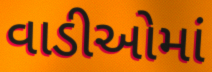
વાડીઓમાં